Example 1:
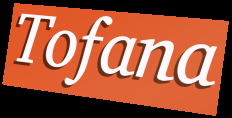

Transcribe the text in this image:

Tofana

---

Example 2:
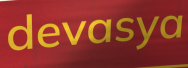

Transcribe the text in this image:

devasya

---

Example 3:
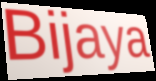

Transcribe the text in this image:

Bijaya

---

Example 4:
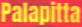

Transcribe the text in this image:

Palapitta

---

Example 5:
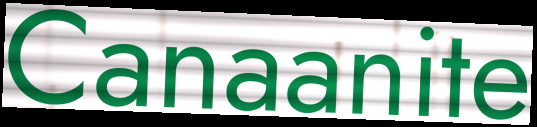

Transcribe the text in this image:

Canaanite